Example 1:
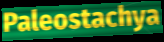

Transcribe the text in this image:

Paleostachya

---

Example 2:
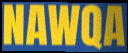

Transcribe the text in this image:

NAWQA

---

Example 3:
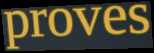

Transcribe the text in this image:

proves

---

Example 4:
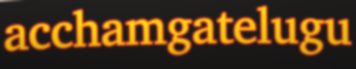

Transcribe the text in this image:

acchamgatelugu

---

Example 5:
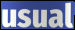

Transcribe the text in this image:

usual